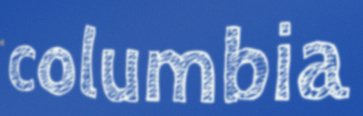
columbia